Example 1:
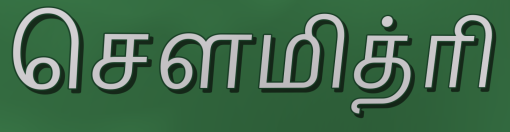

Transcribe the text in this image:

சௌமித்ரி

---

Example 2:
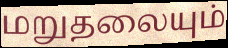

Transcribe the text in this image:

மறுதலையும்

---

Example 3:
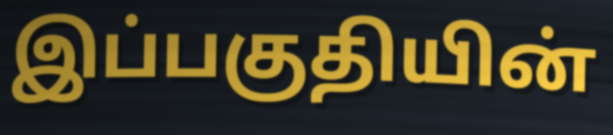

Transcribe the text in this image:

இப்பகுதியின்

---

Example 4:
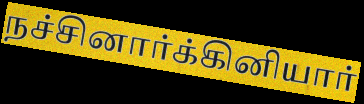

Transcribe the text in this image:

நச்சினார்க்கினியார்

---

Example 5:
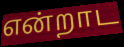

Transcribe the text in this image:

என்றாட